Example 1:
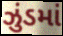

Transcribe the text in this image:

ઝુંડમાં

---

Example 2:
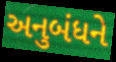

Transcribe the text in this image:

અનુબંધને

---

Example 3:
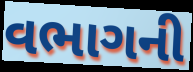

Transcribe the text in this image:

વભાગની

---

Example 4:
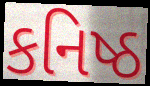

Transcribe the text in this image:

કનિષ્ઠ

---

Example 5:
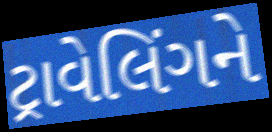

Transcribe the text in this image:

ટ્રાવેલિંગને